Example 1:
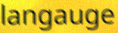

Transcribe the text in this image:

langauge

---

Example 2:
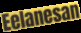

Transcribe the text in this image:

Eelanesan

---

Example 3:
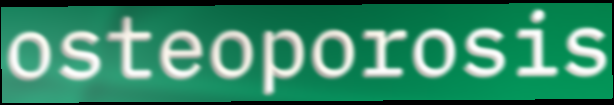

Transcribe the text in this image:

osteoporosis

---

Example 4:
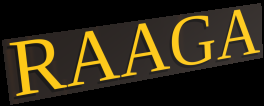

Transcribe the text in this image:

RAAGA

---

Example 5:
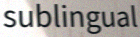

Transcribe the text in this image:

sublingual